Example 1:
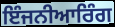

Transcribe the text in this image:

ਇੰਜਨੀਆਰਿੰਗ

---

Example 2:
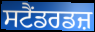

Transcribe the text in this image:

ਸਟੈਂਡਰਡਜ਼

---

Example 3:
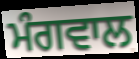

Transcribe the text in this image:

ਮੰਗਵਾਲ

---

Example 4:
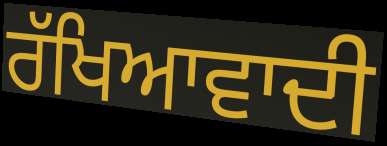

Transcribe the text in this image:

ਰੱਖਿਆਵਾਦੀ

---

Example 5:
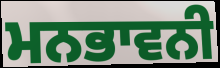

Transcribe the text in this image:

ਮਨਭਾਵਨੀ